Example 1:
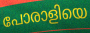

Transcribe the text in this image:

പോരാളിയെ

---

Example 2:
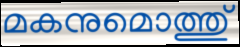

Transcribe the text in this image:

മകനുമൊത്തു്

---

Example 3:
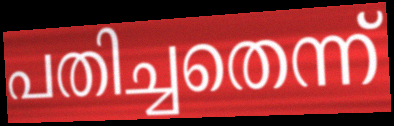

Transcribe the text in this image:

പതിച്ചതെന്ന്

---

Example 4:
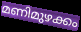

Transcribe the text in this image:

മണിമുഴക്കം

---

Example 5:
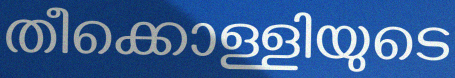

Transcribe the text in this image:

തീക്കൊള്ളിയുടെ